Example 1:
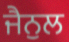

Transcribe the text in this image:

ਜੈਨੁਲ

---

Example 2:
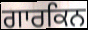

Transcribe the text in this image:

ਗਾਰਕਿਨ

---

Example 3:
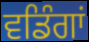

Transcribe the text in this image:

ਵਡਿੰਗਾਂ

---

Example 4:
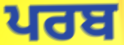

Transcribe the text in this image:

ਪਰਬ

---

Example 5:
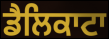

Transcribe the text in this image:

ਡੈਲਿਕਾਟਾ